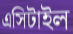
এসিটাইল